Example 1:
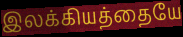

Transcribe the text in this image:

இலக்கியத்தையே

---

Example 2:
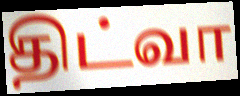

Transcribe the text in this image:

திட்வா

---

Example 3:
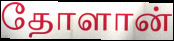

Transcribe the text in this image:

தோளான்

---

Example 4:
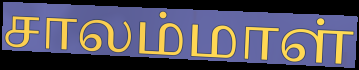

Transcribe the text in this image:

சாலம்மாள்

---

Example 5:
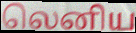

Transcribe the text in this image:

லெனிய